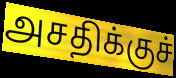
அசதிக்குச்